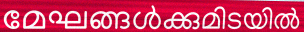
മേഘങ്ങൾക്കുമിടയിൽ